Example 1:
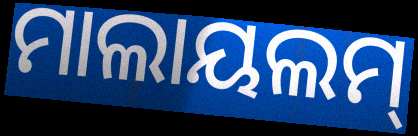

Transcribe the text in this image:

ମାଲାୟଲମ୍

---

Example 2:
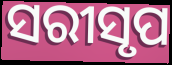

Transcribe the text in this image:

ସରୀସୃପ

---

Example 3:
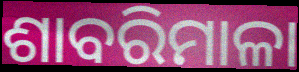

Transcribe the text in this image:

ଶାବରିମାଳା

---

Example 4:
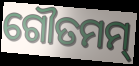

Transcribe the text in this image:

ଗୌତମମ୍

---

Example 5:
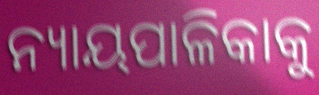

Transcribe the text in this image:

ନ୍ୟାୟପାଳିକାକୁ